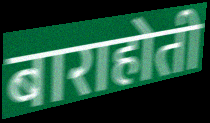
बाराहोती